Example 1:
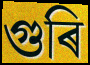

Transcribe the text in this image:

গুৰি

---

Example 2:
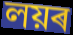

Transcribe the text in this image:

লয়ৰ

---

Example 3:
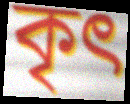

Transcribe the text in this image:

কৃৎ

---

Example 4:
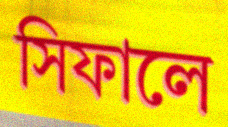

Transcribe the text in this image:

সিফালে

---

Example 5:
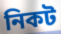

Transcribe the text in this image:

নিকট